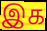
இக